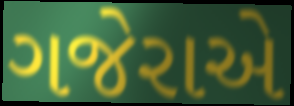
ગજેરાએ